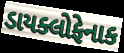
ડાયક્લોફેનાક